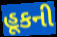
હૂકની